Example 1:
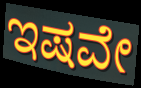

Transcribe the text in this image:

ಇಷವೇ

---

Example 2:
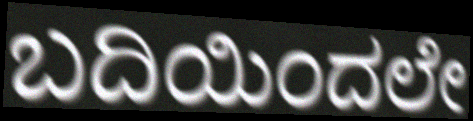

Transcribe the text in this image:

ಬದಿಯಿಂದಲೇ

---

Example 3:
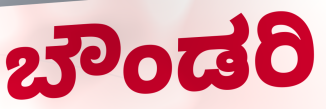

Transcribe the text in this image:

ಬೌಂಡರಿ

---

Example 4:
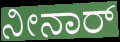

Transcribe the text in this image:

ನೀನಾರ್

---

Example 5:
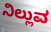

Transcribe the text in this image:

ನಿಲ್ಲುವ